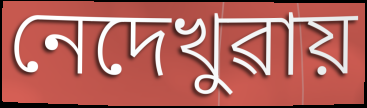
নেদেখুৱায়